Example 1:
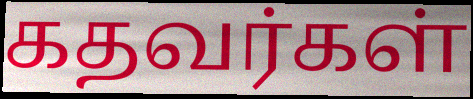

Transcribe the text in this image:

கதவர்கள்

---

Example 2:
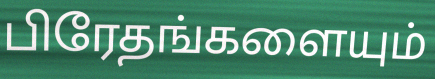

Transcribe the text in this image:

பிரேதங்களையும்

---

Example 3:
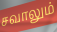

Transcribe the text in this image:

சவாலும்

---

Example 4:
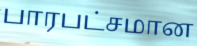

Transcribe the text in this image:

பாரபட்சமான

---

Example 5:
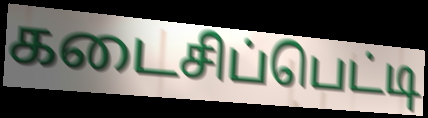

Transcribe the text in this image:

கடைசிப்பெட்டி